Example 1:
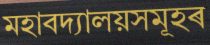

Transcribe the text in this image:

মহাবদ্যালয়সমূহৰ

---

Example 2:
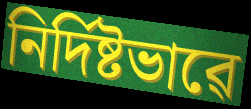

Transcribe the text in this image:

নিৰ্দিষ্টভাৱে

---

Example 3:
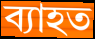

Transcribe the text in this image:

ব্যাহত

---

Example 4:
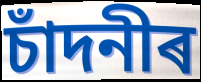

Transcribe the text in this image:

চাঁদনীৰ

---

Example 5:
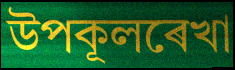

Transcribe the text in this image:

উপকূলৰেখা